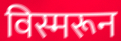
विस्मरून